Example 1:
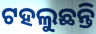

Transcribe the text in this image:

ଟହଲୁଛନ୍ତି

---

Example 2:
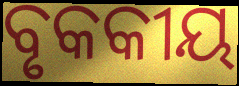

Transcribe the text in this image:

ବୃକକୀୟ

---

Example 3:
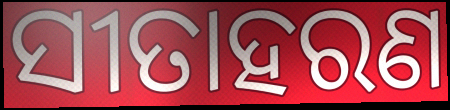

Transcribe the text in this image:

ସୀତାହରଣ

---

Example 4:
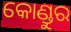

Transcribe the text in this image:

କୋଣ୍ଡୁର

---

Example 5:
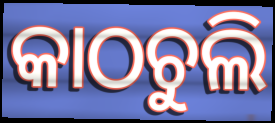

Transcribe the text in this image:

କାଠଚୁଲି